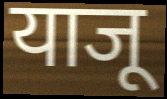
याजू